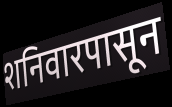
शनिवारपासून